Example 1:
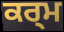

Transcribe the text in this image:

ਕਰ੍ਮ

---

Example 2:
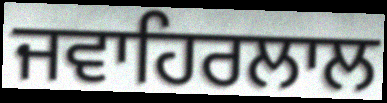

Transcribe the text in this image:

ਜਵਾਹਿਰਲਾਲ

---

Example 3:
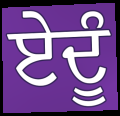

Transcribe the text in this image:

ਏਦੂੰ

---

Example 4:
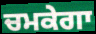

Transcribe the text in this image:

ਚਮਕੇਗਾ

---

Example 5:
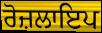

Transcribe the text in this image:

ਰੋਜ਼ਲਾਇਪ